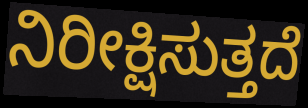
ನಿರೀಕ್ಷಿಸುತ್ತದೆ